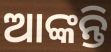
ଆଙ୍କନ୍ତି